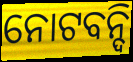
ନୋଟବନ୍ଦି